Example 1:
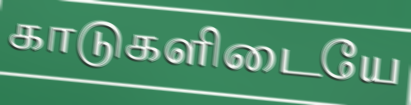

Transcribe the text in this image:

காடுகளிடையே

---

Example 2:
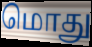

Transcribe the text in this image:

மொது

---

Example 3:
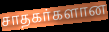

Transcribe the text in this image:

சாதகர்களான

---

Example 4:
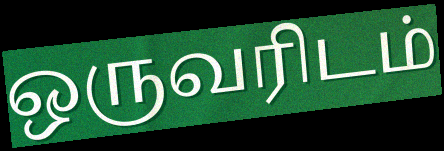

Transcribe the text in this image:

ஒருவரிடம்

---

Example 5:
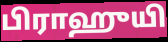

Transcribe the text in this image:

பிராஹுயி